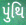
પુંથિ